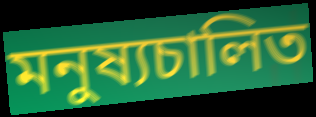
মনুষ্যচালিত